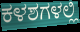
ಕಳಶಗಳಲ್ಲಿ